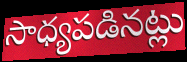
సాధ్యపడినట్లు